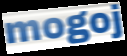
mogoj